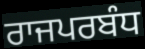
ਰਾਜਪਰਬੰਧ